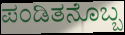
ಪಂಡಿತನೊಬ್ಬ